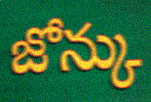
జోన్కు